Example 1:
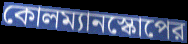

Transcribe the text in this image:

কোলম্যানস্কোপের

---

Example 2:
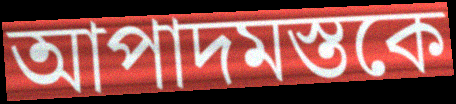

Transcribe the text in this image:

আপাদমস্তকে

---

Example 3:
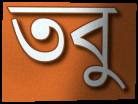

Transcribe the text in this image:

তবু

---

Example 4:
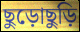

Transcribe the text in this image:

ছুড়োছুড়ি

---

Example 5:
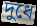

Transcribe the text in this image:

দুধে